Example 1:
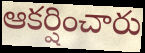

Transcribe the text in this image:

ఆకర్షించారు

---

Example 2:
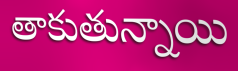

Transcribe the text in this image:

తాకుతున్నాయి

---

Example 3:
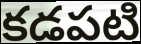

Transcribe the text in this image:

కడపటి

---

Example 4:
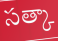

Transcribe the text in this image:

సత్కా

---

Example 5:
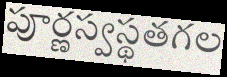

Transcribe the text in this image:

పూర్ణస్వస్థతగల